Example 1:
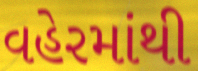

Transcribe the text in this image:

વહેરમાંથી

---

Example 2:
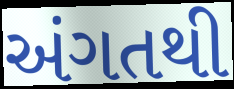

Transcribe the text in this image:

અંગતથી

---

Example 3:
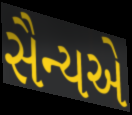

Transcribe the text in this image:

સૈન્યએ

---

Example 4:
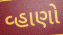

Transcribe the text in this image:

વ્હાણો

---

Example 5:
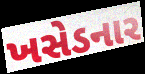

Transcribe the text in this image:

ખસેડનાર